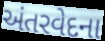
અંતરવેદના